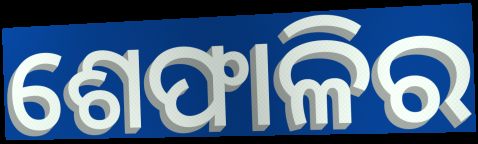
ଶେଫାଳିର